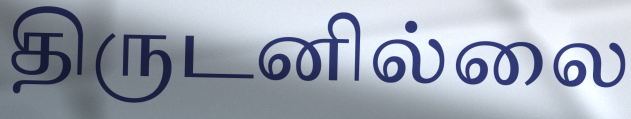
திருடனில்லை